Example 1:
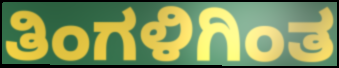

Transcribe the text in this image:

ತಿಂಗಳಿಗಿಂತ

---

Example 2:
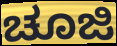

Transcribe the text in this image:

ಚೂಜಿ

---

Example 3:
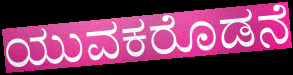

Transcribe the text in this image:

ಯುವಕರೊಡನೆ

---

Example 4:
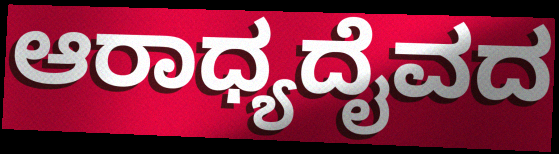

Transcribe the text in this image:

ಆರಾಧ್ಯದೈವದ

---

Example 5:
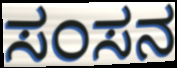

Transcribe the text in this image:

ಸಂಸನ